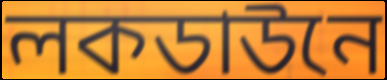
লকডাউনে